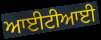
ਆਈਟੀਆਈ